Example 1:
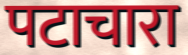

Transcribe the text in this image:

पटाचारा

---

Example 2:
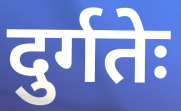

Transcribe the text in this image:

दुर्गतेः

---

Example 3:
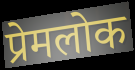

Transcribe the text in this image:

प्रेमलोक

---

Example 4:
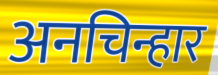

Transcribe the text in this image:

अनचिन्हार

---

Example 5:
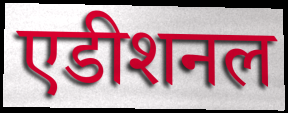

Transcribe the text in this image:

एडीशनल